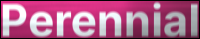
Perennial